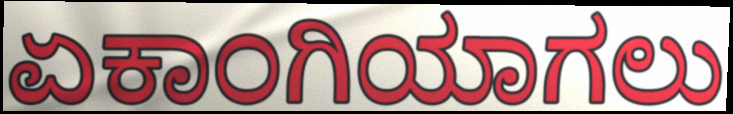
ಏಕಾಂಗಿಯಾಗಲು